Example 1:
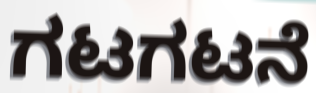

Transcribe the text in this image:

ಗಟಗಟನೆ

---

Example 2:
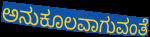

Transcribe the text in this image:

ಅನುಕೂಲವಾಗುವಂತೆ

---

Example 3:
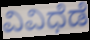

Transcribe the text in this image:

ವಿವಿಧೆಡೆ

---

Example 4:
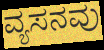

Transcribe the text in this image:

ವ್ಯಸನವು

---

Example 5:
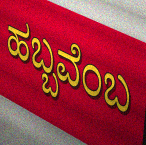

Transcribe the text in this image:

ಹಬ್ಬವೆಂಬ